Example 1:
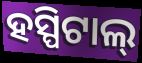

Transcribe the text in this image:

ହସ୍ପିଟାଲ୍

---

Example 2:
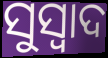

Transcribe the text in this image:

ସୁସ୍ୱାଦ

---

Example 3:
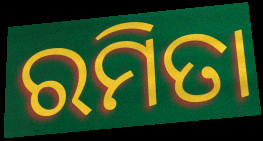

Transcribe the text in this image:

ରମିତା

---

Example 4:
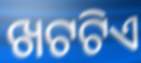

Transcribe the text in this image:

ଖଟଟିଏ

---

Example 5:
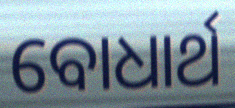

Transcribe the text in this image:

ବୋଧାର୍ଥ